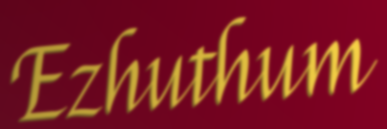
Ezhuthum